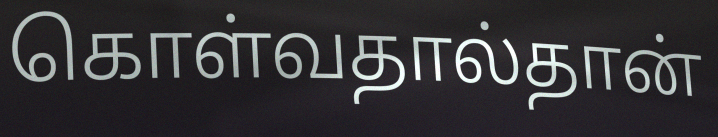
கொள்வதால்தான்